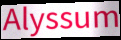
Alyssum